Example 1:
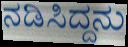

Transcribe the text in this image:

ನಡಿಸಿದ್ದನು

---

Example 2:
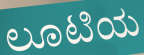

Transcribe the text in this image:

ಲೂಟಿಯ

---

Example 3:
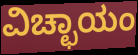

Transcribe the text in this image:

ವಿಚ್ಛಾಯಂ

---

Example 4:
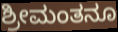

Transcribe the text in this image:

ಶ್ರೀಮಂತನೂ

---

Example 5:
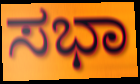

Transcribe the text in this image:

ಸಭಾ